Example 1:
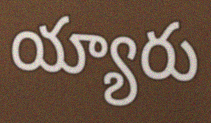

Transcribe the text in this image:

య్యారు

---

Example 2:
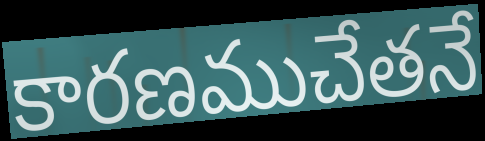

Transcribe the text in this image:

కారణముచేతనే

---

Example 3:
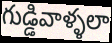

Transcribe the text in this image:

గుడ్డివాళ్ళలా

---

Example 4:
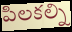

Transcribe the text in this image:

పిలకల్ని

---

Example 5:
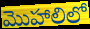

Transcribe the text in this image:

మొహాలిలో